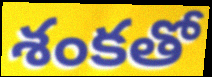
శంకతో